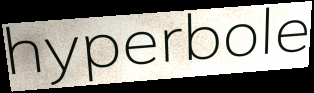
hyperbole